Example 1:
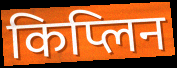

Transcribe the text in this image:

किप्लिन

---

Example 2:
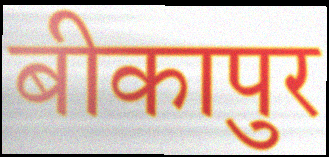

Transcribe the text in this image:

बीकापुर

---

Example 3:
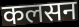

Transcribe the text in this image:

कलसन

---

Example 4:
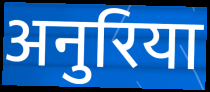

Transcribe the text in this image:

अनुरिया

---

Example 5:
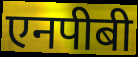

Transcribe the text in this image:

एनपीबी